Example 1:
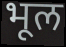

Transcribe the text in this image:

भूल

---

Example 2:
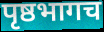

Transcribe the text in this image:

पृष्ठभागच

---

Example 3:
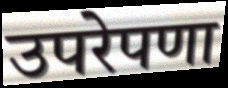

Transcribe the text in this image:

उपरेपणा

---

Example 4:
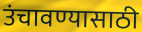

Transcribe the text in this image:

उंचावण्यासाठी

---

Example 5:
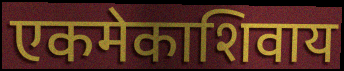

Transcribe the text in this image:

एकमेकाशिवाय